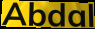
Abdal